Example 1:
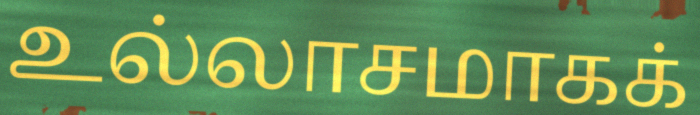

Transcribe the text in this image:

உல்லாசமாகக்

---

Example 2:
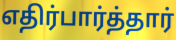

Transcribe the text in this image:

எதிர்பார்த்தார்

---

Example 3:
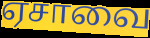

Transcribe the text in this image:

ஏசாவை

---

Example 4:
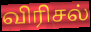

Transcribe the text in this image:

விரிசல்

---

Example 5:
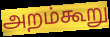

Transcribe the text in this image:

அறம்கூறு